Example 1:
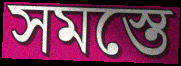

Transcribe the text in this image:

সমস্তে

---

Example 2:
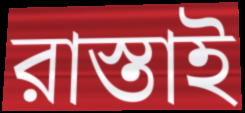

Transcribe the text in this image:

রাস্তাই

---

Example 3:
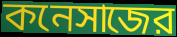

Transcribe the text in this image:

কনেসাজের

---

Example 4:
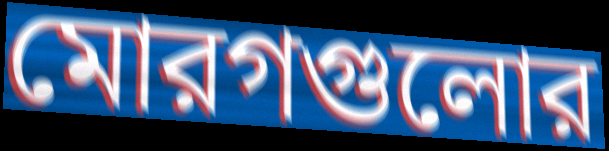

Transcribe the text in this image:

মোরগগুলোর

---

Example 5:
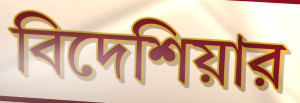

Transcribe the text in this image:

বিদেশিয়ার